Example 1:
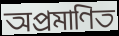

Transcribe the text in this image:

অপ্রমাণিত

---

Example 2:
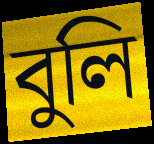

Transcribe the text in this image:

বুলি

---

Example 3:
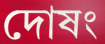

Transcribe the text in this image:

দোষং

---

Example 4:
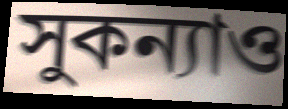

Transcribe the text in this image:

সুকন্যাও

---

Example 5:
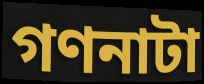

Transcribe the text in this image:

গণনাটা